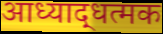
आध्याद्धत्मक